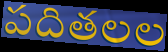
పదితలల